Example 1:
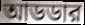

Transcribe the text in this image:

আডডার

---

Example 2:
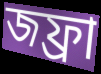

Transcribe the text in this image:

জফ্রা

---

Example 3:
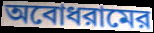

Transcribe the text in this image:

অবোধরামের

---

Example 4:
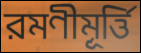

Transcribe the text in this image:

রমণীমূর্ত্তি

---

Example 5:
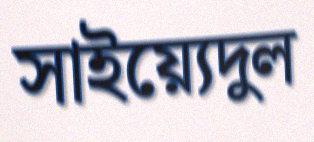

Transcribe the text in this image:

সাইয়্যেদুল